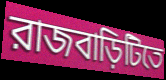
রাজবাড়িটিতে